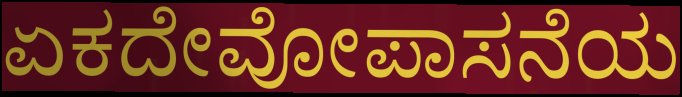
ಏಕದೇವೋಪಾಸನೆಯ